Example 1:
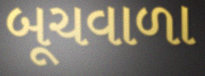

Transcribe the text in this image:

બૂચવાળા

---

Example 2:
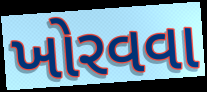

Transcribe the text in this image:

ખોરવવા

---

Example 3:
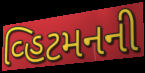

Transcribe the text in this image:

વ્હિટમનની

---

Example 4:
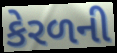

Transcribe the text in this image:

કેરળની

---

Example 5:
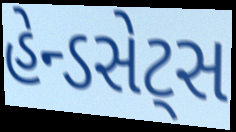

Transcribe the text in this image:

હેન્ડસેટ્સ